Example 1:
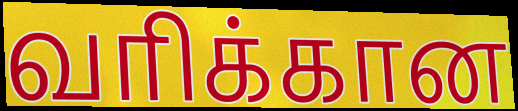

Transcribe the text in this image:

வரிக்கான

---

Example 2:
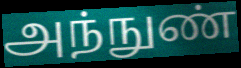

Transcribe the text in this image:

அந்நுண்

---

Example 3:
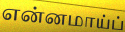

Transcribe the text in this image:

என்னமாய்ப்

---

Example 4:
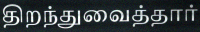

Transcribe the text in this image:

திறந்துவைத்தார்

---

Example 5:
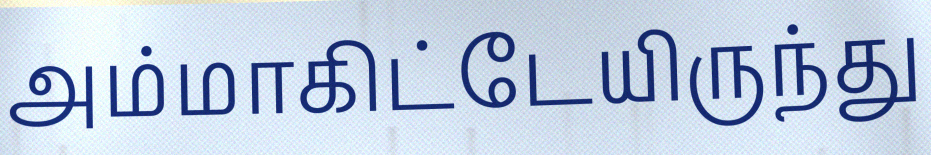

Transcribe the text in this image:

அம்மாகிட்டேயிருந்து